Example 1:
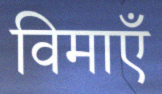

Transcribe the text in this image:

विमाएँ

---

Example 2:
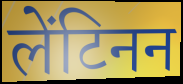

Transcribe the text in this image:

लेंटिनन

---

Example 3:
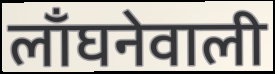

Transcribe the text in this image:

लाँघनेवाली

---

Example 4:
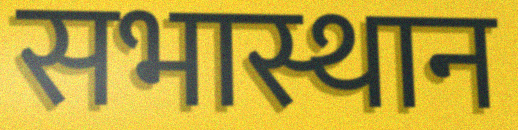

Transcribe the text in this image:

सभास्थान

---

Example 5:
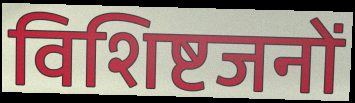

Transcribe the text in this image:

विशिष्टजनों